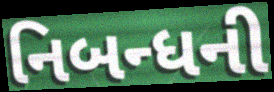
નિબન્ધની